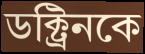
ডক্ট্রিনকে